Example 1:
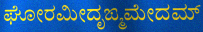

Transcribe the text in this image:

ಘೋರಮೀದೃಙ್ಮಮೇದಮ್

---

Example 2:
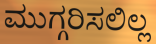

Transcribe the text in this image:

ಮುಗ್ಗರಿಸಲಿಲ್ಲ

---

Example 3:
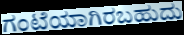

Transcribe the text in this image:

ಗಂಟೆಯಾಗಿರಬಹುದು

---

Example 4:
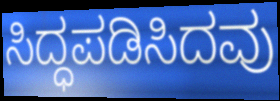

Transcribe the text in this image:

ಸಿದ್ಧಪಡಿಸಿದವು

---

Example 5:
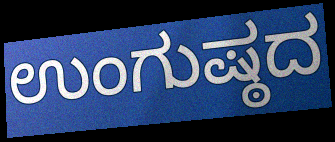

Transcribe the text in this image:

ಉಂಗುಷ್ಠದ